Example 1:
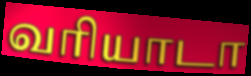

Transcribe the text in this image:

வரியாடா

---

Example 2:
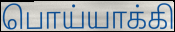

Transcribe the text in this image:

பொய்யாக்கி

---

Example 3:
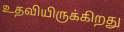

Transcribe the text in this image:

உதவியிருக்கிறது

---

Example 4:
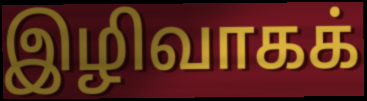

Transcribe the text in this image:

இழிவாகக்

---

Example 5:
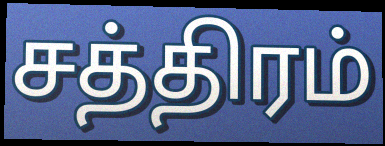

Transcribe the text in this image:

சத்திரம்